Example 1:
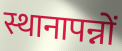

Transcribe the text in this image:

स्थानापन्नों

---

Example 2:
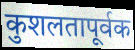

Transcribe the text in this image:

कुशलतापूर्वक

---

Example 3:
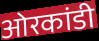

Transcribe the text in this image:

ओरकांडी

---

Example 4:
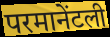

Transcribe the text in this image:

परमानेंटली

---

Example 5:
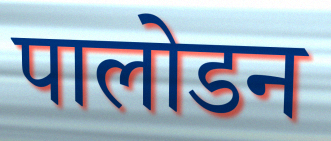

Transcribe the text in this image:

पालोडन